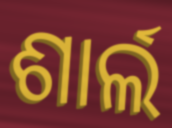
ଶାର୍ଲ